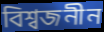
বিশ্বজনীন